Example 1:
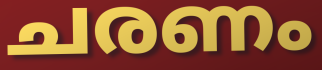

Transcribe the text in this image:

ചരണം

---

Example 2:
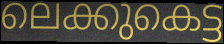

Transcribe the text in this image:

ലെക്കുകെട്ട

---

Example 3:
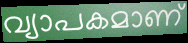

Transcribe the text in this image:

വ്യാപകമാണ്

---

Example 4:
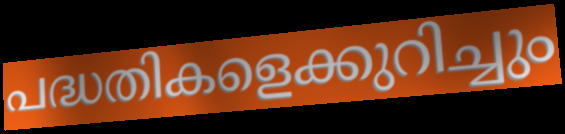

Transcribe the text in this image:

പദ്ധതികളെക്കുറിച്ചും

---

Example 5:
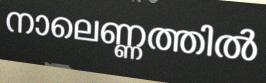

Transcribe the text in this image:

നാലെണ്ണത്തിൽ